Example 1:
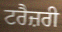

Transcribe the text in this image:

ਟਰੈਜ਼ਰੀ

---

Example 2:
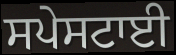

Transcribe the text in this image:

ਸਪੇਸਟਾਈ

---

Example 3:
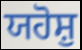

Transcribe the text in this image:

ਯਹੋਸ਼ੁ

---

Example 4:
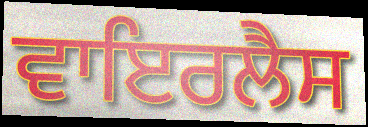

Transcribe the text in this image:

ਵਾਇਰਲੈਸ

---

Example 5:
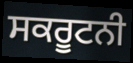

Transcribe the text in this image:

ਸਕਰੂਟਨੀ